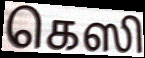
கெஸி